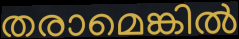
തരാമെങ്കിൽ